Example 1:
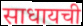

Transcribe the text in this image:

साधायची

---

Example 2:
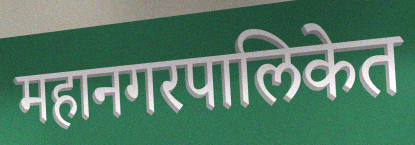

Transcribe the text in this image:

महानगरपालिकेत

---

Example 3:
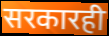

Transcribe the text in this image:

सरकारही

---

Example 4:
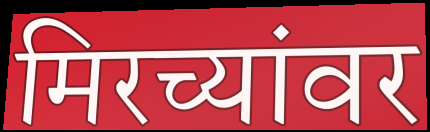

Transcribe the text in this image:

मिरच्यांवर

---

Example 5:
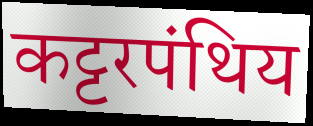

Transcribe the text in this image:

कट्टरपंथिय